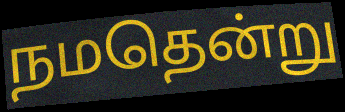
நமதென்று